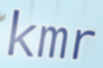
kmr